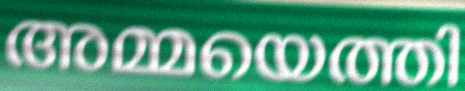
അമ്മയെത്തി